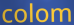
colom